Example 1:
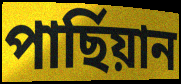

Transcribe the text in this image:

পাৰ্ছিয়ান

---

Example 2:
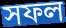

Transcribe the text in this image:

সফল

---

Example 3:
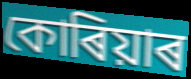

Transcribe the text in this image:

কোৰিয়াৰ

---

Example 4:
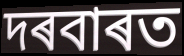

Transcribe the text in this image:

দৰবাৰত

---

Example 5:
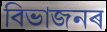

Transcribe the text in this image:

বিভাজনৰ